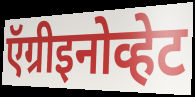
ऍग्रीइनोव्हेट